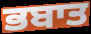
ਭਬਾਤ